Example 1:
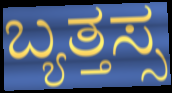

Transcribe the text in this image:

ಬ್ಯತ್ತಸ್ಸ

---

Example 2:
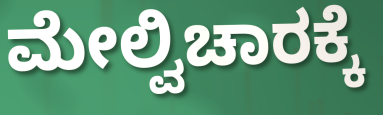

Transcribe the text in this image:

ಮೇಲ್ವಿಚಾರಕ್ಕೆ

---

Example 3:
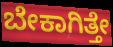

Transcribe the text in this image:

ಬೇಕಾಗಿತ್ತೇ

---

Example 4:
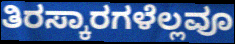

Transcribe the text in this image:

ತಿರಸ್ಕಾರಗಳೆಲ್ಲವೂ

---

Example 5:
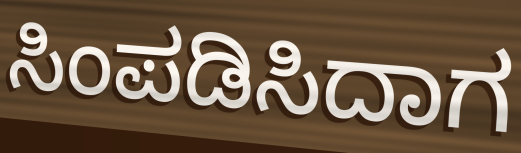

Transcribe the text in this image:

ಸಿಂಪಡಿಸಿದಾಗ